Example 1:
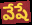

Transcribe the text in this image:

వేషే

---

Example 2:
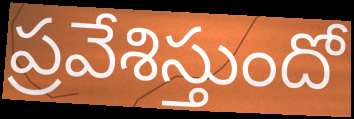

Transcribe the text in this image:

ప్రవేశిస్తుందో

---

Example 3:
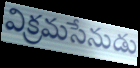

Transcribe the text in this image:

విక్రమసేనుడు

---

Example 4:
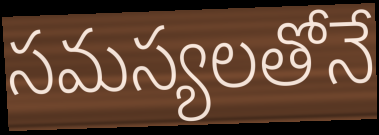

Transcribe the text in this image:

సమస్యలతోనే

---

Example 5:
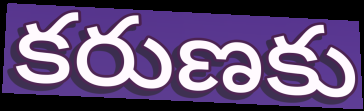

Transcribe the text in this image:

కరుణకు